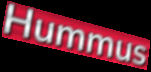
Hummus